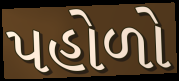
પહોળો